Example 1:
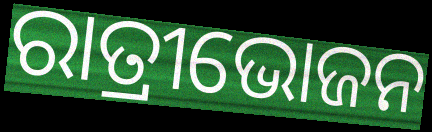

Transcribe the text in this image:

ରାତ୍ରୀଭୋଜନ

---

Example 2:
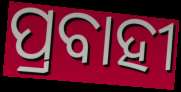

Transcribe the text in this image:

ପ୍ରବାହୀ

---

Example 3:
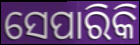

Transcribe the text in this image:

ସେପାରିକି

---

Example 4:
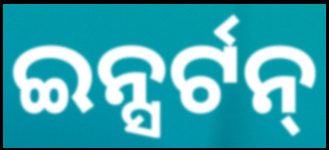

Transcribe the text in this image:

ଇନ୍ସର୍ଟନ୍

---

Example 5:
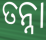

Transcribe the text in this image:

ତନ୍ନା